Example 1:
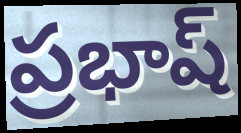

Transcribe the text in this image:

ప్రభాష్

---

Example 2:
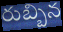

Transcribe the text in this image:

రుబ్బిన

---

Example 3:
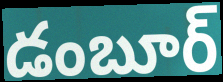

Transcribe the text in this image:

డంబూర్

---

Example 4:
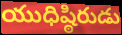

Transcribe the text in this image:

యుధిష్ఠిరుడు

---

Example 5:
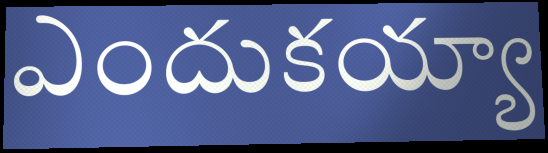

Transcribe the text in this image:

ఎందుకయ్యా